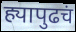
ह्यापुढचं